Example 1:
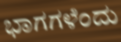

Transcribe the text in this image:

ಭಾಗಗಳೆಂದು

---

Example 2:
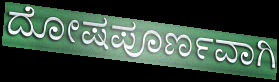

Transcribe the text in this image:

ದೋಷಪೂರ್ಣವಾಗಿ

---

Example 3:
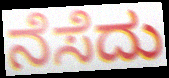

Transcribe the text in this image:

ನೆಸೆದು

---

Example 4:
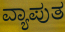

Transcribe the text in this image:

ವ್ಯಾಪುತ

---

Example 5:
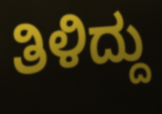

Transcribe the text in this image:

ತಿಳಿದ್ದು